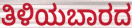
ತಿಳಿಯಬಾರದ